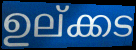
ഉല്ക്കട